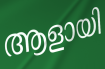
ആളായി